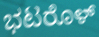
ಭಟರೊಳ್